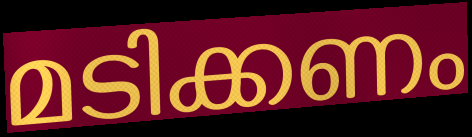
മടിക്കണം